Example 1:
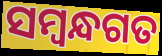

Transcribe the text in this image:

ସମ୍ବନ୍ଧଗତ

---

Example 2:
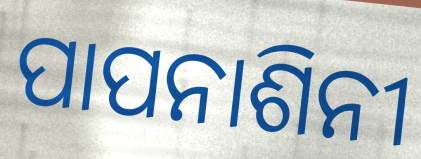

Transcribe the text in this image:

ପାପନାଶିନୀ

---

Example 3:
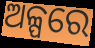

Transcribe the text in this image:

ଅଳ୍ପରେ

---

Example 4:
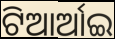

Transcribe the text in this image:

ଟିଆର୍ଆଇ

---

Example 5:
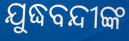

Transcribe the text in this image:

ଯୁଦ୍ଧବନ୍ଦୀଙ୍କ